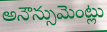
అనౌన్సుమెంట్లు